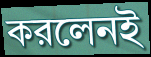
করলেনই